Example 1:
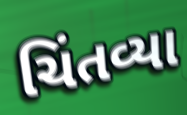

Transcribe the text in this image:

ચિંતવ્યા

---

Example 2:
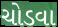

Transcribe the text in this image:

ચોડવા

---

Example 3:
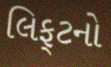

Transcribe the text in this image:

લિફ્‌ટનો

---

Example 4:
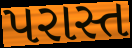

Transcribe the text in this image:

પરાસ્ત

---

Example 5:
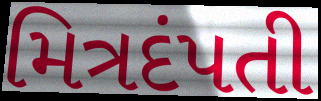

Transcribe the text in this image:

મિત્રદંપતી